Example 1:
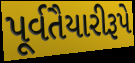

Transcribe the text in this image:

પૂર્વતૈયારીરૂપે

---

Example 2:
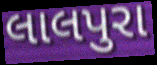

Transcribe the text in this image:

લાલપુરા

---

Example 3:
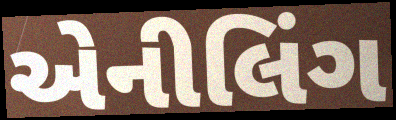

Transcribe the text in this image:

એનીલિંગ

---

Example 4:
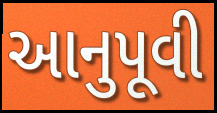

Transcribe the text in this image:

આનુપૂવી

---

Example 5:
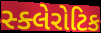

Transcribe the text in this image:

સ્ક્લેરોટિક